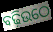
ବଢ଼ିଉଠେ